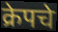
क्रेपचे